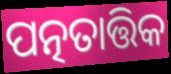
ପତ୍ନତାତ୍ତିକ